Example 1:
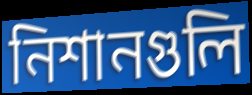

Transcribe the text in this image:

নিশানগুলি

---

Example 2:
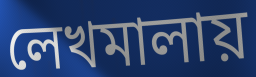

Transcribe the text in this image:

লেখমালায়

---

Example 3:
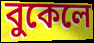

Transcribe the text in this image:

বুকেলে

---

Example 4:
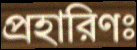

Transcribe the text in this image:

প্রহারিণঃ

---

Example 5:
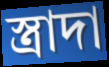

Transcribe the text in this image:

স্ত্রাদা